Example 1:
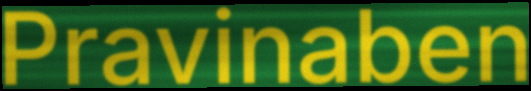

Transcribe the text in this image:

Pravinaben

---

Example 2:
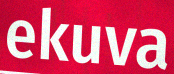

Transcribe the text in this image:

ekuva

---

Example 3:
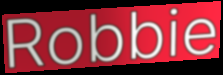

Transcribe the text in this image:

Robbie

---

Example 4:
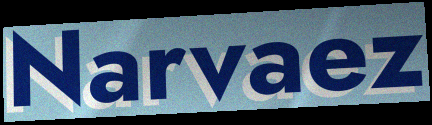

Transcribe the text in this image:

Narvaez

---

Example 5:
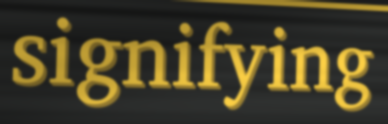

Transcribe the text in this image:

signifying